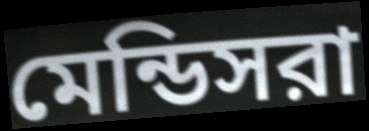
মেন্ডিসরা